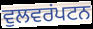
ਵੁਲਵਰਂਪਟਨ